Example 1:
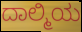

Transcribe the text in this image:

ದಾಲ್ಮಿಯ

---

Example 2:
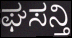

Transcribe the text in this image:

ಘಸನ್ತಿ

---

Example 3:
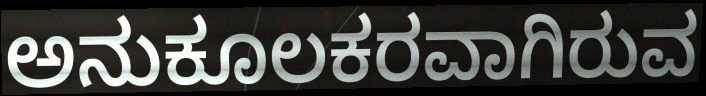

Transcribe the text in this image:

ಅನುಕೂಲಕರವಾಗಿರುವ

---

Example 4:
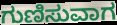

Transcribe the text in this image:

ಗುಣಿಸುವಾಗ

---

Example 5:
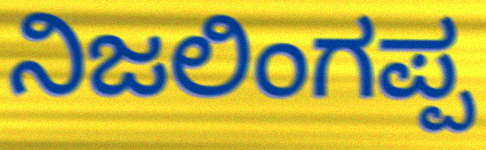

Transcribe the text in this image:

ನಿಜಲಿಂಗಪ್ಪ